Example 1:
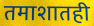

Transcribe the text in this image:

तमाशातही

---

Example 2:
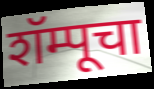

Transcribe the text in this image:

शॅम्पूचा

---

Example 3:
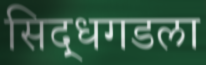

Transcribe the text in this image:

सिद्धगडला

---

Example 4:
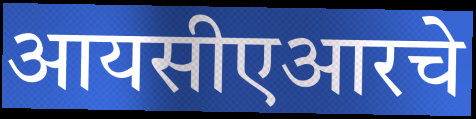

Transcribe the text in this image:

आयसीएआरचे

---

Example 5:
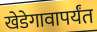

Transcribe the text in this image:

खेडेगावापर्यंत